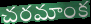
చరమాంక